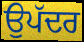
ਉਪੱਦਰ